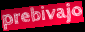
prebivajo